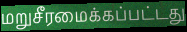
மறுசீரமைக்கப்பட்டது